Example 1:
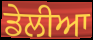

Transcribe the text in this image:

ਡੇਲੀਆ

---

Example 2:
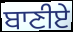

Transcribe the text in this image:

ਬਾਣੀਏ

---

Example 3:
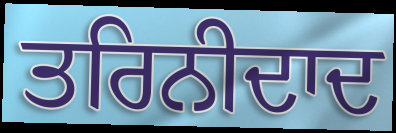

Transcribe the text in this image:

ਤਰਿਨੀਦਾਦ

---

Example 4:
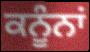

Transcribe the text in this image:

ਕਨੂੰਨਾਂ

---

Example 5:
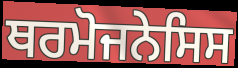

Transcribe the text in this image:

ਥਰਮੋਜਨੇਸਿਸ